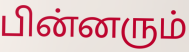
பின்னரும்